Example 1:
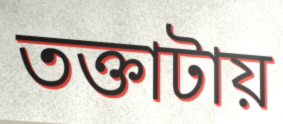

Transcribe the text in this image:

তক্তাটায়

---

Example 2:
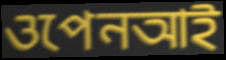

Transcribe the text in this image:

ওপেনআই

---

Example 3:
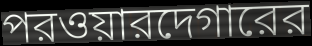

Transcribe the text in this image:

পরওয়ারদেগারের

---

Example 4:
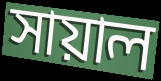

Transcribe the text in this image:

সায়াল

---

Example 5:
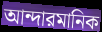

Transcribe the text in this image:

আন্দারমানিক